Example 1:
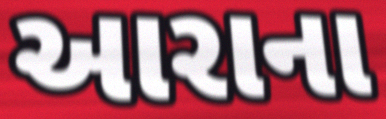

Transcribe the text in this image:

આરાના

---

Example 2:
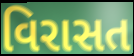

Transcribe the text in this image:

વિરાસત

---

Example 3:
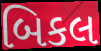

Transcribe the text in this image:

બિકલ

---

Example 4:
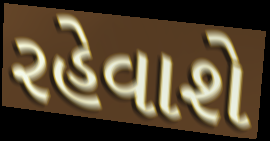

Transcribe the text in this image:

રહેવાશે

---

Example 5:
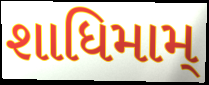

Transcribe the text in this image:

શાધિમામ્